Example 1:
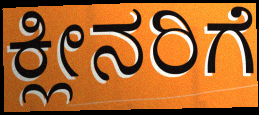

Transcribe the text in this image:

ಕ್ಲೀನರಿಗೆ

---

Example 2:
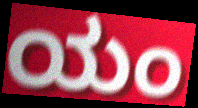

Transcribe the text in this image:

ಯಂ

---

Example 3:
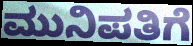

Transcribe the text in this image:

ಮುನಿಪತಿಗೆ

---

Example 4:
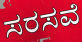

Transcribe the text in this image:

ಸರಸವೆ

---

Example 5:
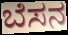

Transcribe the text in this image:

ಬೆಸನ